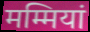
मम्मियां